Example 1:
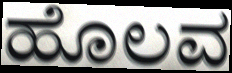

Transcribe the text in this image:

ಹೊಲವ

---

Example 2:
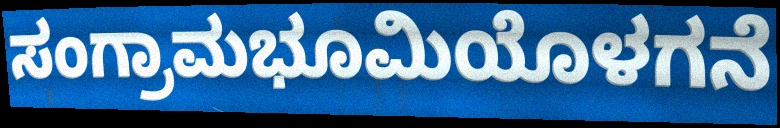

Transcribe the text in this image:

ಸಂಗ್ರಾಮಭೂಮಿಯೊಳಗನೆ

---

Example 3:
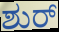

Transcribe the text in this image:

ಶುರ್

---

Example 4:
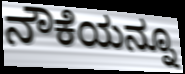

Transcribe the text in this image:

ನೌಕೆಯನ್ನೂ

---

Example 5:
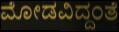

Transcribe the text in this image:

ಮೋಡವಿದ್ದಂತೆ